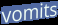
vomits